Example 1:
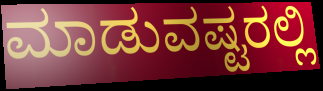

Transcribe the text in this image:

ಮಾಡುವಷ್ಟರಲ್ಲಿ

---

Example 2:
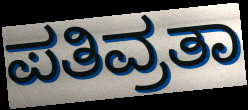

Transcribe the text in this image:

ಪತಿವ್ರತಾ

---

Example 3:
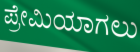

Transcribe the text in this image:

ಪ್ರೇಮಿಯಾಗಲು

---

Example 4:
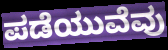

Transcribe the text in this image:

ಪಡೆಯುವೆವು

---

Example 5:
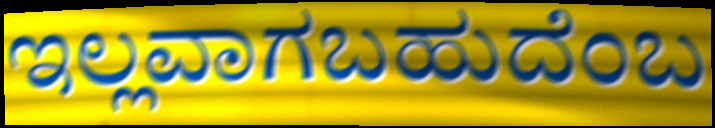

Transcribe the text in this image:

ಇಲ್ಲವಾಗಬಹುದೆಂಬ